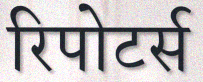
रिपोटर्स